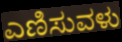
ಎಣಿಸುವಳು